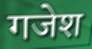
गजेश